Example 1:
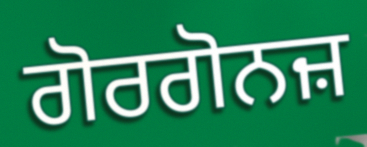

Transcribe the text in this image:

ਗੋਰਗੋਨਜ਼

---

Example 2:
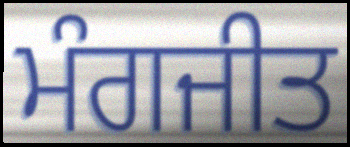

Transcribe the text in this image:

ਮੰਗਜੀਤ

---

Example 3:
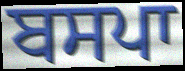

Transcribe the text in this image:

ਬਸਪਾ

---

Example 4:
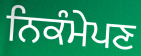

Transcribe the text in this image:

ਨਿਕੰਮੇਪਣ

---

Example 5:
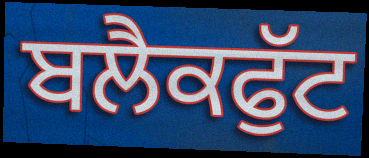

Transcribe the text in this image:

ਬਲੈਕਫੁੱਟ